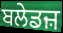
ਬਲੇਡਜ਼